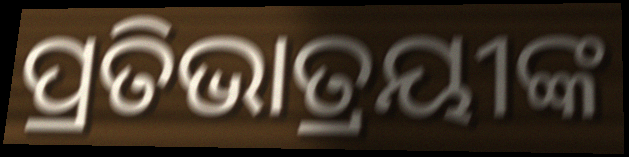
ପ୍ରତିଭାତ୍ରୟୀଙ୍କ